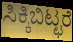
ಸಿಕ್ಕಿಬಿಟ್ಟರೆ